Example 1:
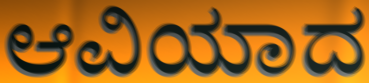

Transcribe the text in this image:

ಆವಿಯಾದ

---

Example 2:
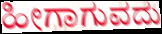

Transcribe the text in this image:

ಹೀಗಾಗುವದು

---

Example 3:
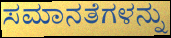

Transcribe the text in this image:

ಸಮಾನತೆಗಳನ್ನು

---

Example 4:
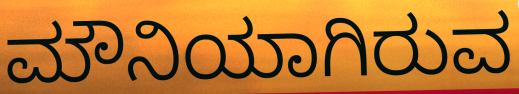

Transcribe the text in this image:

ಮೌನಿಯಾಗಿರುವ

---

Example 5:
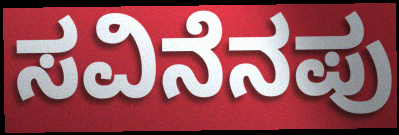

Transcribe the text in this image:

ಸವಿನೆನಪು